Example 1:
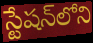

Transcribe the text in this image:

స్టేషన్‌లోని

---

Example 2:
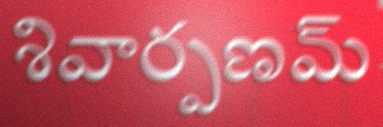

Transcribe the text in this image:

శివార్పణమ్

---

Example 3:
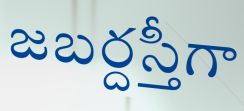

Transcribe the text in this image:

జబర్దస్తీగా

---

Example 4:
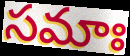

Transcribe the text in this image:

సమాః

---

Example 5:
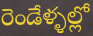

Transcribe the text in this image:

రెండేళ్ళల్లో